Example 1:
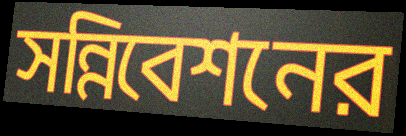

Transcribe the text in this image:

সন্নিবেশনের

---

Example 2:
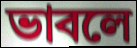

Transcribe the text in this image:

ভাবলে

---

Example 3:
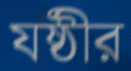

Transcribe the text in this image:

যষ্ঠীর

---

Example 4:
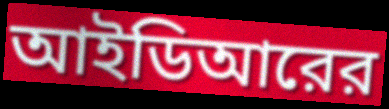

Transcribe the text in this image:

আইডিআরের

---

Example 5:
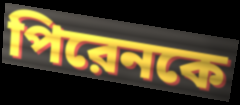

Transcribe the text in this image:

পিরেনকে